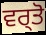
ਵਰ੍ਤੋ